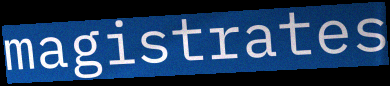
magistrates